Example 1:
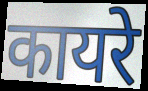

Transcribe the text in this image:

कायरे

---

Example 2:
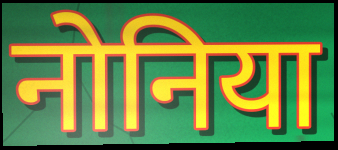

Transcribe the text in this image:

नोनिया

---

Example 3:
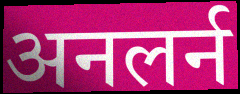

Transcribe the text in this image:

अनलर्न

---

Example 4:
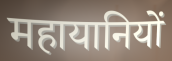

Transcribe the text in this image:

महायानियों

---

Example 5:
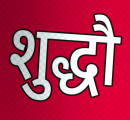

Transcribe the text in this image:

शुद्धौ